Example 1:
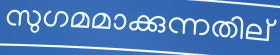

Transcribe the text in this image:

സുഗമമാക്കുന്നതില്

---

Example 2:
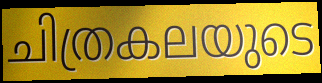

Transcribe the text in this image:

ചിത്രകലയുടെ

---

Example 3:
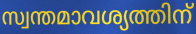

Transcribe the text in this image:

സ്വന്തമാവശ്യത്തിന്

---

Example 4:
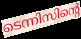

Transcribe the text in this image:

ടെന്നിസിന്റെ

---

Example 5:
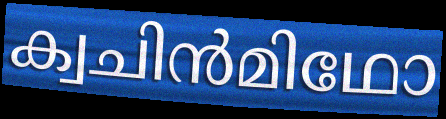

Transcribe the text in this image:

ക്വചിൻമിഥോ